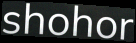
shohor